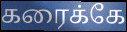
கரைக்கே